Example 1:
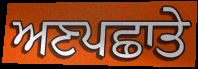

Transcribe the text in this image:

ਅਣਪਛਾਤੇ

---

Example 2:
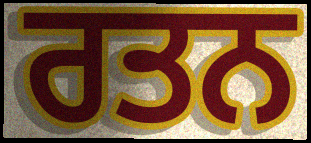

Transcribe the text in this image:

ਰਤਨ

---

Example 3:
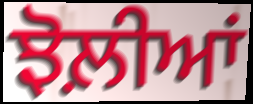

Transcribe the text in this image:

ਝੋਲ਼ੀਆਂ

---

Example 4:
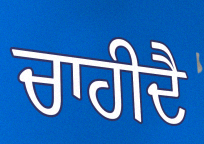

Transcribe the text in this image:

ਚਾਹੀਦੈ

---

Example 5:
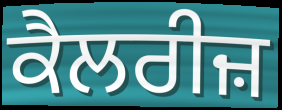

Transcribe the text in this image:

ਕੈਲਰੀਜ਼